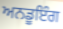
ਅਨਡੂਇੰਗ